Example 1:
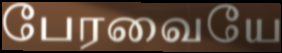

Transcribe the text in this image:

பேரவையே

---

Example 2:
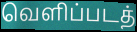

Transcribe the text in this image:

வெளிப்படத்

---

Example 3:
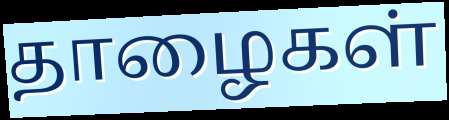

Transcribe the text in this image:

தாழைகள்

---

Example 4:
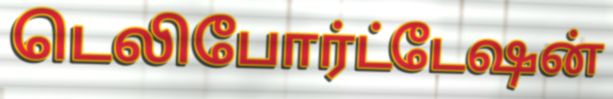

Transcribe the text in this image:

டெலிபோர்ட்டேஷன்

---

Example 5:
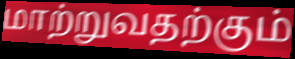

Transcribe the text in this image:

மாற்றுவதற்கும்